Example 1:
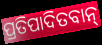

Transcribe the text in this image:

ପ୍ରତିପାଦିତବାନ୍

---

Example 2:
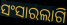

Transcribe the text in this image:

ସଂସାରଲାଗି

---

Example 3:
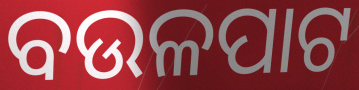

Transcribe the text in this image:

ବଉଳପାଟ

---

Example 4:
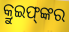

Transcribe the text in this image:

କ୍ରୁଇଫ୍‌ଙ୍କର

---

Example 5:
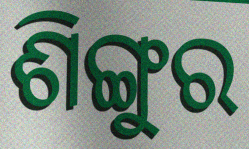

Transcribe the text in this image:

ଶିଙ୍ଗୁର